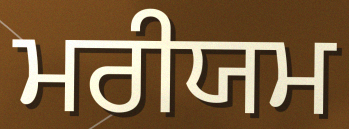
ਮਰੀਯਮ